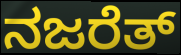
ನಜರೆತ್